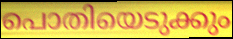
പൊതിയെടുക്കും